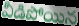
వీడిపోయిన